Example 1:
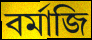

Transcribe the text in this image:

বর্মাজি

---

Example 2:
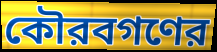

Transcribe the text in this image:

কৌরবগণের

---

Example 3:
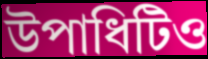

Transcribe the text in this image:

উপাধিটিও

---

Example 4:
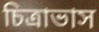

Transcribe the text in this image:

চিত্রাভাস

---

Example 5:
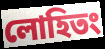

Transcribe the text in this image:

লোহিতং